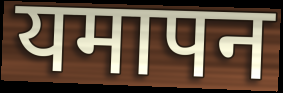
यमापन